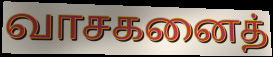
வாசகனைத்